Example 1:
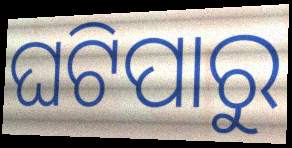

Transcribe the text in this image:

ଘଟିପାରୁ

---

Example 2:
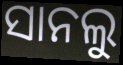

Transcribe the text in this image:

ସାନଲୁ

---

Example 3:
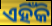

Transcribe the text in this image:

ଏହିଁକି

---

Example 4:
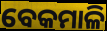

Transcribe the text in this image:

ବେକମାଳି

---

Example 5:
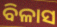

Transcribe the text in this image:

ବିଳାସ